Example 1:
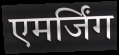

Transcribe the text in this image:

एमर्जिंग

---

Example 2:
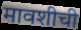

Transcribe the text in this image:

मावशीची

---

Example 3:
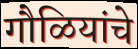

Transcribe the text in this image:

गौळियांचे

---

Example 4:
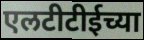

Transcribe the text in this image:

एलटीटीईच्या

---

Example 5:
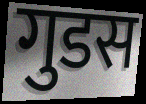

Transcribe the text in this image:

गुडस